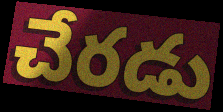
చేరడు